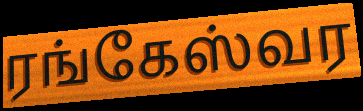
ரங்கேஸ்வர